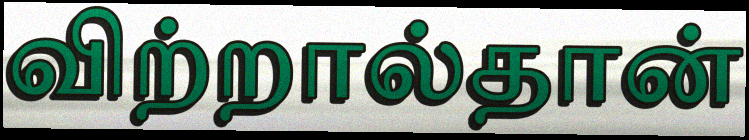
விற்றால்தான்